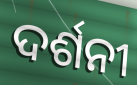
ଦର୍ଶନୀ